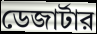
ডেজার্টার